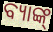
ବ୍ୟାଙ୍କ୍